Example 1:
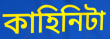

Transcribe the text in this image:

কাহিনিটা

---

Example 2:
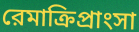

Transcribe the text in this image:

রেমাক্রিপ্রাংসা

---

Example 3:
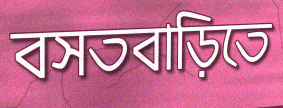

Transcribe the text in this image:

বসতবাড়িতে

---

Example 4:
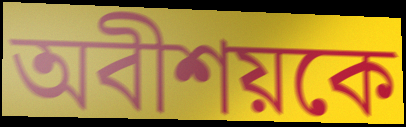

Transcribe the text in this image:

অবীশয়কে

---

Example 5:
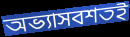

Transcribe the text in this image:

অভ্যাসবশতই